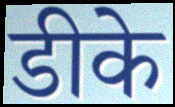
डीके